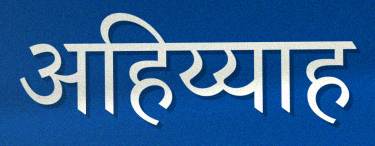
अहिय्याह